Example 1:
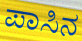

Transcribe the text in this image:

ಪಾಸಿನ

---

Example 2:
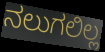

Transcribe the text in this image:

ನಲುಗಲಿಲ್ಲ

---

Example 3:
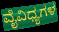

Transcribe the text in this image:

ವೈವಿಧ್ಯಗಳ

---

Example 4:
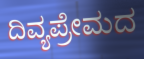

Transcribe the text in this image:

ದಿವ್ಯಪ್ರೇಮದ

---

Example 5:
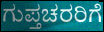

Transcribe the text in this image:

ಗುಪ್ತಚರರಿಗೆ